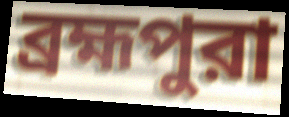
ব্রহ্মপুরা